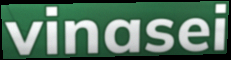
vinasei